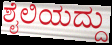
ಶೈಲಿಯದ್ದು